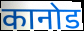
कानोड